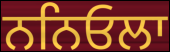
ਨਨਿਓਲਾ